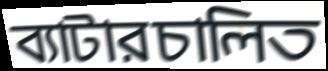
ব্যাটারচালিত